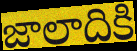
జాలాదికి